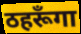
ठहरूँगा